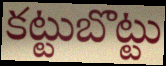
కట్టుబొట్టు